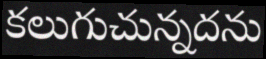
కలుగుచున్నదను